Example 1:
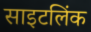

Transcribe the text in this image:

साइटलिंक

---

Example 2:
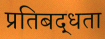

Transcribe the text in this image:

प्रतिबद्धता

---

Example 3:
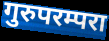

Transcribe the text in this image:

गुरुपरम्परा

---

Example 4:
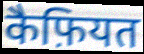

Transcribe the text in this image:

कैफ़ियत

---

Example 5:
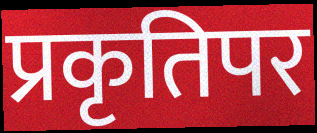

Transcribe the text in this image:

प्रकृतिपर